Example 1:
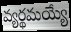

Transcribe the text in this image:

వ్యర్థమయ్యే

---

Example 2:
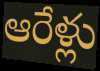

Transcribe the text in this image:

ఆరేళ్లు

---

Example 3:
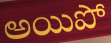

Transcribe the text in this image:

అయిపో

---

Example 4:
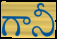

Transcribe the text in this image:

గానీ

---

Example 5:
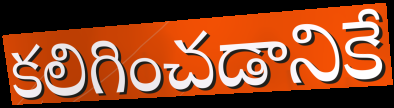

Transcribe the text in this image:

కలిగించడానికే